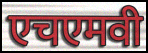
एचएमवी